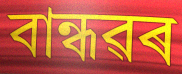
বান্ধৱৰ